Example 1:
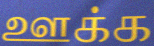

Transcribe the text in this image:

ஊக்க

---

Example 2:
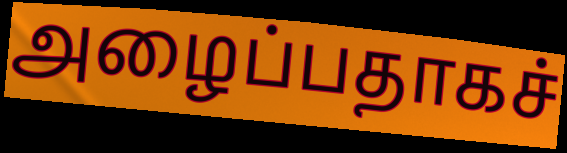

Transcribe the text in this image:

அழைப்பதாகச்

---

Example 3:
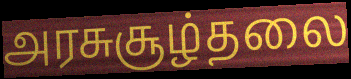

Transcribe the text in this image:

அரசுசூழ்தலை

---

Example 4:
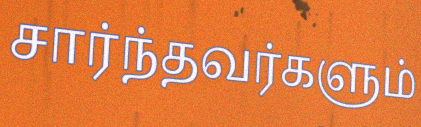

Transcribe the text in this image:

சார்ந்தவர்களும்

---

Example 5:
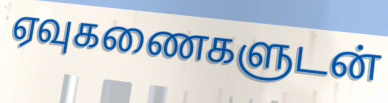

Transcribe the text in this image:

ஏவுகணைகளுடன்